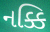
નક્કિ